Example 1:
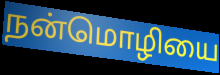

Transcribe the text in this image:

நன்மொழியை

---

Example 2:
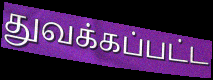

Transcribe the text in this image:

துவக்கப்பட்ட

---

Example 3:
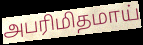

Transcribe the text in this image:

அபரிமிதமாய்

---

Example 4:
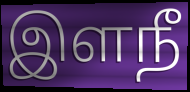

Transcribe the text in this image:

இளநீ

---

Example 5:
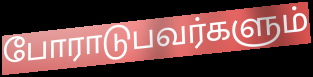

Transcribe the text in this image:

போராடுபவர்களும்